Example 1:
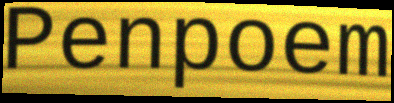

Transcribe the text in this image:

Penpoem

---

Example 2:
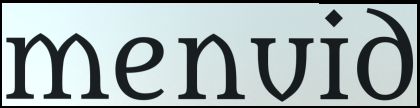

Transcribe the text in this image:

menuid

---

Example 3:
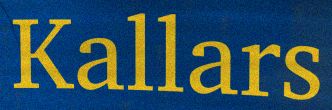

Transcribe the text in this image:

Kallars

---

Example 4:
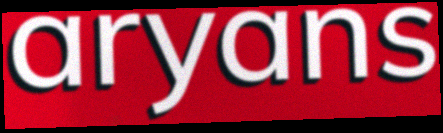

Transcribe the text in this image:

aryans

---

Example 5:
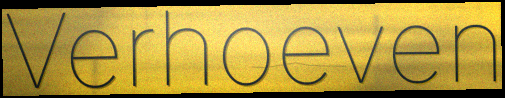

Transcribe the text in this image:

Verhoeven